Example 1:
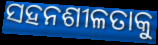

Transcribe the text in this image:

ସହନଶୀଳତାକୁ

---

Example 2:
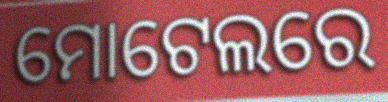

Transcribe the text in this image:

ମୋଟେଲରେ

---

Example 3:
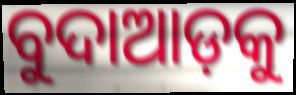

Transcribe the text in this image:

ବୁଦାଆଡ଼କୁ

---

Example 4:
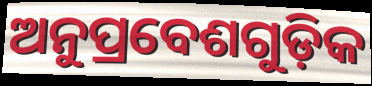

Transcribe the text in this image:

ଅନୁପ୍ରବେଶଗୁଡ଼ିକ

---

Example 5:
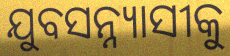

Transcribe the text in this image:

ଯୁବସନ୍ନ୍ୟାସୀକୁ